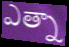
ఎత్నా